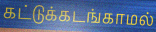
கட்டுக்கடங்காமல்